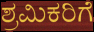
ಶ್ರಮಿಕರಿಗೆ